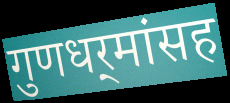
गुणधर्मांसह